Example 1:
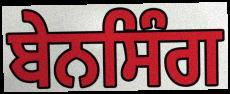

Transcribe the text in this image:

ਬੇਨਸਿੰਗ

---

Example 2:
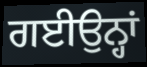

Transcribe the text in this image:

ਗਈਉਨ੍ਹਾਂ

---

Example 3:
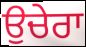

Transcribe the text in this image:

ਉਚੇਰਾ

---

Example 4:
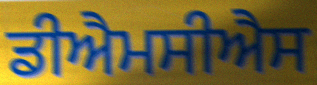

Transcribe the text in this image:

ਡੀਐਮਸੀਐਸ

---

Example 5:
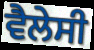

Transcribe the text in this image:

ਵੈਲੇਸੀ